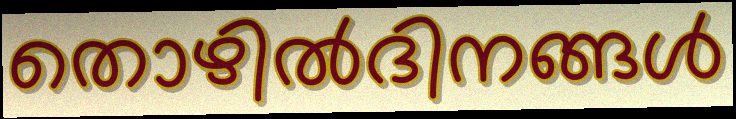
തൊഴിൽദിനങ്ങൾ